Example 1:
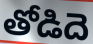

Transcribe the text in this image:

తోడిదె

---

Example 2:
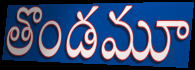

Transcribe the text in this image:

తొండమూ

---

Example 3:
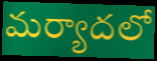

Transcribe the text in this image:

మర్యాదలో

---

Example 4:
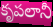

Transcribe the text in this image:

కృపలానీ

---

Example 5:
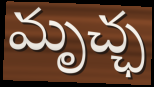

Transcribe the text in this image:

మృచ్ఛ